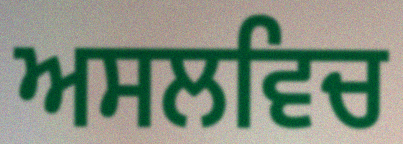
ਅਸਲਵਿਚ